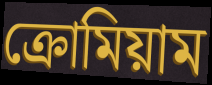
ক্রোমিয়াম